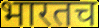
भारतच